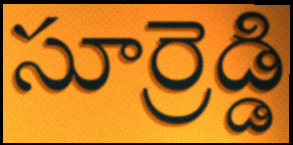
సూర్రెడ్డి